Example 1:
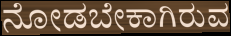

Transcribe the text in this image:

ನೋಡಬೇಕಾಗಿರುವ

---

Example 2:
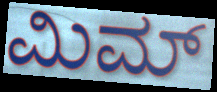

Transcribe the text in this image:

ಮಿಮ್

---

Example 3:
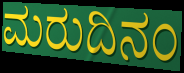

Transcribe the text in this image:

ಮರುದಿನಂ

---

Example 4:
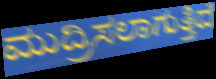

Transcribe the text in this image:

ಮುದ್ರಿಸಲಾಗುತ್ತಿದೆ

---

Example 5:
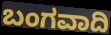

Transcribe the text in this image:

ಬಂಗವಾದಿ